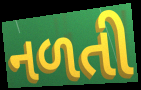
નળતી